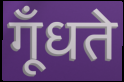
गूँधते